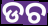
ଡଚ